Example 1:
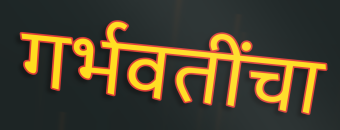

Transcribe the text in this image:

गर्भवतींचा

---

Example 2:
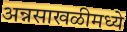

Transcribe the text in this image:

अन्नसाखळीमध्ये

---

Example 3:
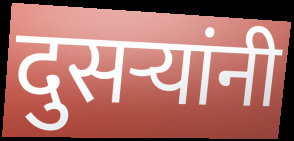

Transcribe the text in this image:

दुसर्‍यांनी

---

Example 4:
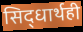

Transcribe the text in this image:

सिद्धार्थही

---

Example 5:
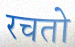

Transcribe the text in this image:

रचतो